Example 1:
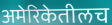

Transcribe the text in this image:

अमेरिकेतीलच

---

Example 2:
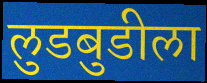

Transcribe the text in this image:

लुडबुडीला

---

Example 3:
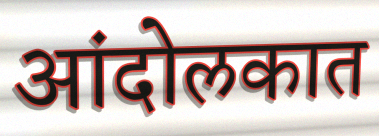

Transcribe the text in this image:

आंदोलकात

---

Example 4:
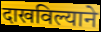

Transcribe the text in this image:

दाखविल्याने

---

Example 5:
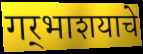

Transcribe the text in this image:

गर्भाशयाचे